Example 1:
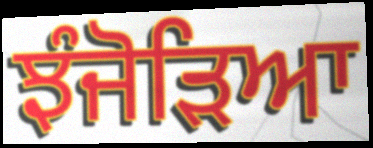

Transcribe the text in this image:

ਝੰਜੋੜਿਆ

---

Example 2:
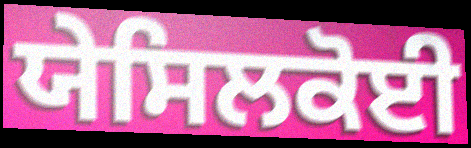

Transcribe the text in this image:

ਯੇਸਿਲਕੋਈ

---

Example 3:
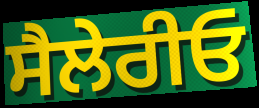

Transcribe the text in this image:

ਸੈਲੇਰੀਓ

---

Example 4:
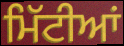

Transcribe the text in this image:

ਮਿੱਟੀਆਂ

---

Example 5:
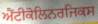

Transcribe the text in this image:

ਐਂਟੀਕੋਲਿਨਰਜਿਕਸ